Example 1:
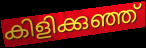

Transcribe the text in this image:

കിളിക്കുഞ്ഞ്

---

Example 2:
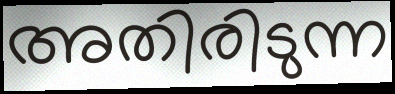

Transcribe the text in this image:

അതിരിടുന്ന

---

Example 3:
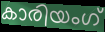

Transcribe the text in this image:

കാരിയംഗ്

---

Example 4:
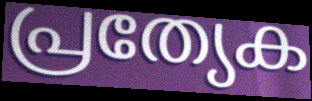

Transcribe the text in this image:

പ്രത്യേക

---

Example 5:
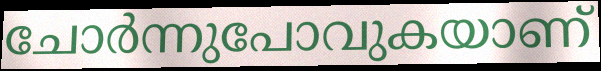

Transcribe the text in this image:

ചോർന്നുപോവുകയാണ്